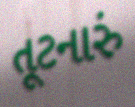
તૂટનારું